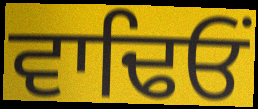
ਵਾਢਿਓਂ